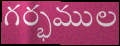
గర్భముల